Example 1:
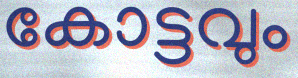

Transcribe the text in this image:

കോട്ടവും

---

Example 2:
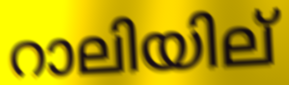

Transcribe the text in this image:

റാലിയില്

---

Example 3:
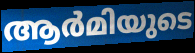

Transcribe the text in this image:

ആർമിയുടെ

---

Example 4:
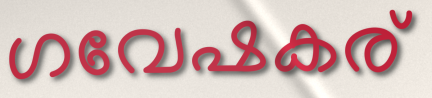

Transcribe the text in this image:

ഗവേഷകര്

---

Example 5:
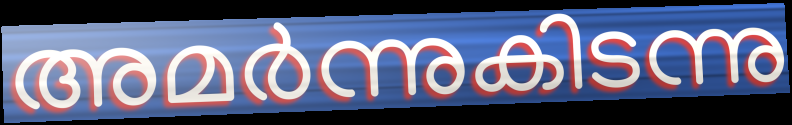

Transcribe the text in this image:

അമർന്നുകിടന്നു